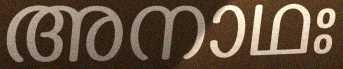
അനാഥഃ